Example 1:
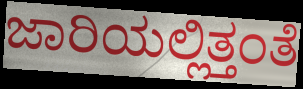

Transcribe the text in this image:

ಜಾರಿಯಲ್ಲಿತ್ತಂತೆ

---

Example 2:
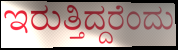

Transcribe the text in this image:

ಇರುತ್ತಿದ್ದರೆಂದು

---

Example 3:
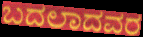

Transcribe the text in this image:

ಬದಲಾದವರ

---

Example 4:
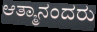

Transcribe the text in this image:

ಆತ್ಮಾನಂದರು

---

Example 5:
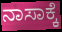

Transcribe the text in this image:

ನಾಸಾಕ್ಕೆ